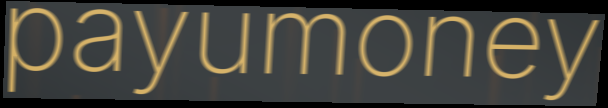
payumoney